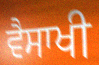
ਵੈਸਾਖੀ